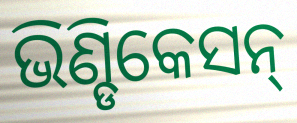
ଭିଣ୍ଡିକେସନ୍